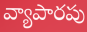
వ్యాపారపు